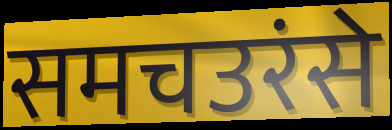
समचउरंसे